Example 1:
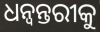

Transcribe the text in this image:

ଧନ୍ବନ୍ତରୀକୁ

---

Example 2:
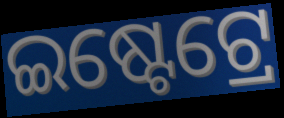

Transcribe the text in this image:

ଇଷ୍ଟେଟ୍ରେ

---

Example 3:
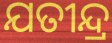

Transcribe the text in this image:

ଯତୀନ୍ଦ୍ର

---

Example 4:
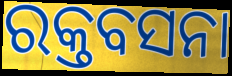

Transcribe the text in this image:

ରକ୍ତବସନା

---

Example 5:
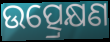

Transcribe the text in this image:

ଉତ୍ପ୍ରେକ୍ଷଣ